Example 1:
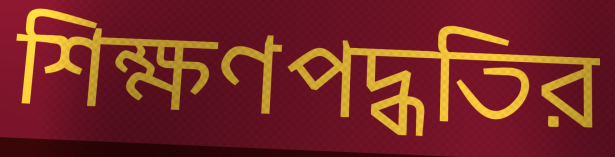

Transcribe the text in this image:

শিক্ষণপদ্ধতির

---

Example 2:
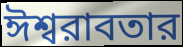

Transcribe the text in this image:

ঈশ্বরাবতার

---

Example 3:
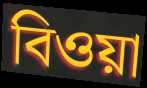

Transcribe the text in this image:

বিওয়া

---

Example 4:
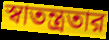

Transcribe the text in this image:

স্বাতন্ত্রতার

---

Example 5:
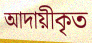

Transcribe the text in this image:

আদায়ীকৃত